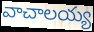
వాచాలయ్య